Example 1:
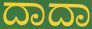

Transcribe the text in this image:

ದಾದಾ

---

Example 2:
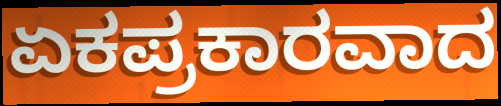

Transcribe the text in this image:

ಏಕಪ್ರಕಾರವಾದ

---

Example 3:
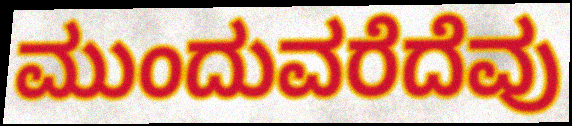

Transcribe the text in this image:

ಮುಂದುವರೆದೆವು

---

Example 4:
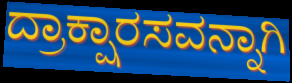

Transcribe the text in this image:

ದ್ರಾಕ್ಷಾರಸವನ್ನಾಗಿ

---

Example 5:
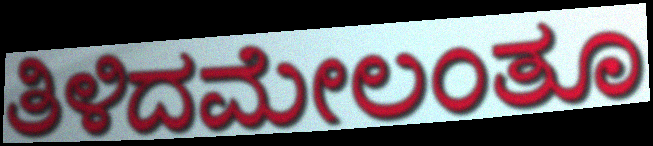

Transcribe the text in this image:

ತಿಳಿದಮೇಲಂತೂ